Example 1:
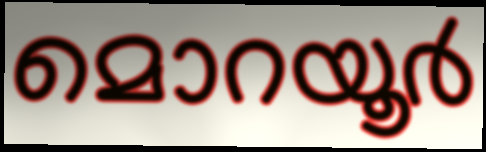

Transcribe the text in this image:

മൊറയൂർ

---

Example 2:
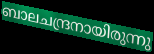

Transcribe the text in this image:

ബാലചന്ദ്രനായിരുന്നു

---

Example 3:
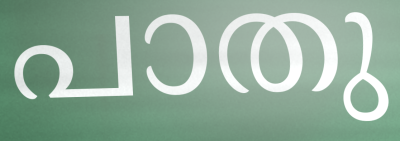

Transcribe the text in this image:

പാതു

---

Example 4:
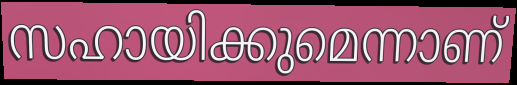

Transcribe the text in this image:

സഹായിക്കുമെന്നാണ്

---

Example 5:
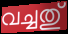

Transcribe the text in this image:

വച്ചതു്